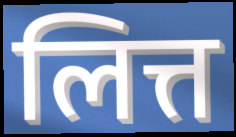
लित्त